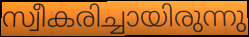
സ്വീകരിച്ചായിരുന്നു